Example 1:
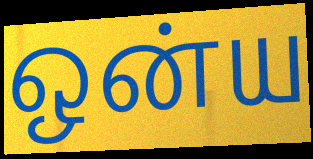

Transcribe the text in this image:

ஒன்ய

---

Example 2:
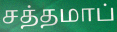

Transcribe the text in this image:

சத்தமாப்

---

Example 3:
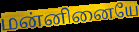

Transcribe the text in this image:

மன்னினையே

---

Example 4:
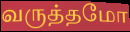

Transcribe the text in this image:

வருத்தமோ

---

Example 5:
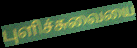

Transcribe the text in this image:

புளிச்சுவையை